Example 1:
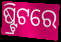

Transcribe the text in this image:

ଷ୍ଟ୍ରିଟରେ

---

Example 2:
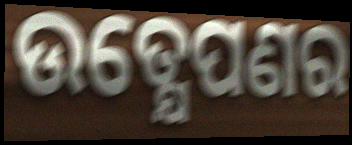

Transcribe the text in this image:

ଉତ୍କ୍ଷେପଣର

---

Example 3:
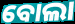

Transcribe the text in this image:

ବୋଲା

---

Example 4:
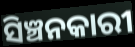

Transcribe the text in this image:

ସିଞ୍ଚନକାରୀ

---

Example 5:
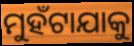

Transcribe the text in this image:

ମୁହଁଟାଯାକୁ